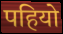
पहियो